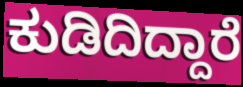
ಕುಡಿದಿದ್ದಾರೆ